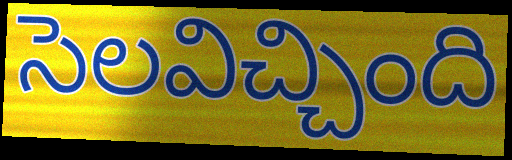
సెలవిచ్చింది